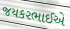
જયકરભાઈએ